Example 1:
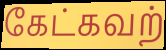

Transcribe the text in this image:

கேட்கவற்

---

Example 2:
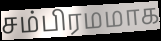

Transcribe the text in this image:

சம்பிரமமாக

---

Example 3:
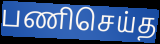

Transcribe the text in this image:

பணிசெய்த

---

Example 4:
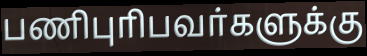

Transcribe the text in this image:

பணிபுரிபவர்களுக்கு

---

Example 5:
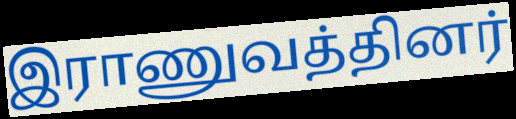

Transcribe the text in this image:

இராணுவத்தினர்